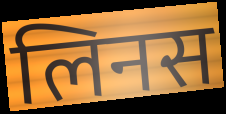
लिनस